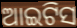
ଆଇଟିସ